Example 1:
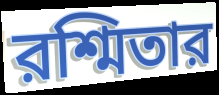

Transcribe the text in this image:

রশ্মিতার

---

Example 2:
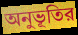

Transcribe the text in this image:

অনুভূতির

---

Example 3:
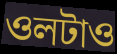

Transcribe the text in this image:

ওলটাও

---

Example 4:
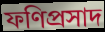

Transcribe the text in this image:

ফণিপ্রসাদ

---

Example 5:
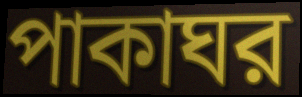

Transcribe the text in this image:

পাকাঘর